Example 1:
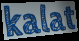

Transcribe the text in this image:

kalat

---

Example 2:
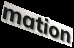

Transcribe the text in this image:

mation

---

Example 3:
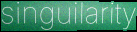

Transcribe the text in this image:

singuilarity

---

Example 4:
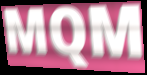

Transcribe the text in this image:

MQM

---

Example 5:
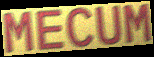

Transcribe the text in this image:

MECUM